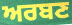
ਅਰਬਣ